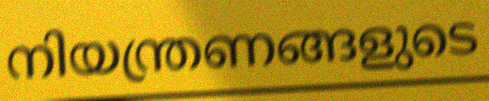
നിയന്ത്രണങ്ങളുടെ